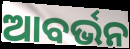
ଆବର୍ଭନ